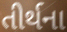
તીર્થના